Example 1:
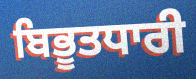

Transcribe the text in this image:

ਬਿਭੂਤਧਾਰੀ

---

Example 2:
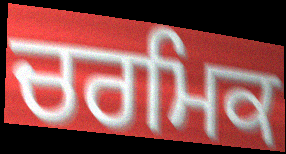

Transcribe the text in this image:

ਚਰਮਿਕ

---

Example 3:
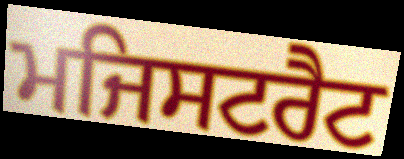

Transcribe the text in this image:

ਮਜਿਸਟਰੈਟ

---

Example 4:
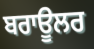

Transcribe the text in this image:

ਬਰਾਊਲਰ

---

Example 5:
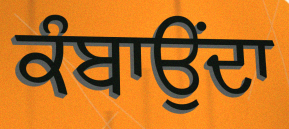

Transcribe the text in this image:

ਕੰਬਾਉਂਦਾ